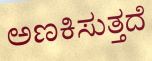
ಅಣಕಿಸುತ್ತದೆ